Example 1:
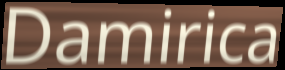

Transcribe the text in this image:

Damirica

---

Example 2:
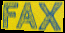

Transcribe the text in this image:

FAX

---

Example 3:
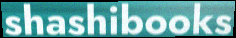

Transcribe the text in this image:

shashibooks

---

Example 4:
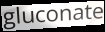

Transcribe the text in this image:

gluconate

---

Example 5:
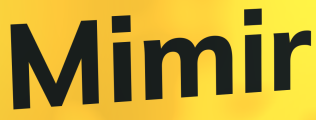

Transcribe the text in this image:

Mimir